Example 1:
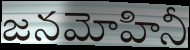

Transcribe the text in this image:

జనమోహినీ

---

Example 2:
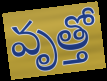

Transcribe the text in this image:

వృత్తో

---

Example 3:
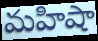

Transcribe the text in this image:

మహిషా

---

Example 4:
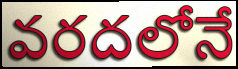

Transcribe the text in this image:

వరదలోనే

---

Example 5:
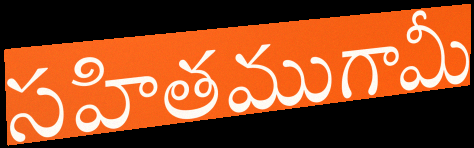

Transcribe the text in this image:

సహితముగామీ